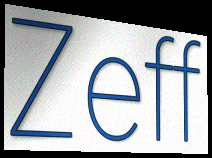
Zeff